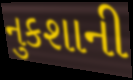
નુકશાની